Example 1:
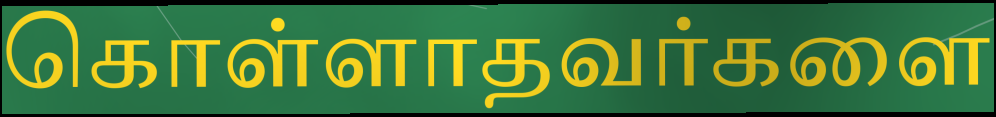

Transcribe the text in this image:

கொள்ளாதவர்களை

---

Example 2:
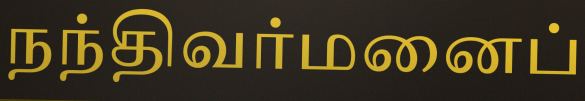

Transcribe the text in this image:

நந்திவர்மனைப்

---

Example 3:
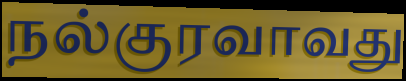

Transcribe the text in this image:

நல்குரவாவது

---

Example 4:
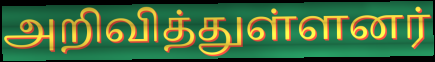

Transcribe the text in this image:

அறிவித்துள்ளனர்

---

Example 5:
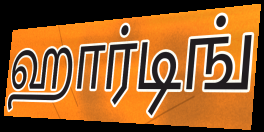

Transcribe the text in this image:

ஹார்டிங்